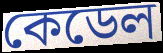
কেডেল